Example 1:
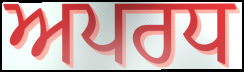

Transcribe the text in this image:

ਅਪਰਧ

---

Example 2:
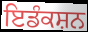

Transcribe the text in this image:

ਇਡੰਕਸ਼ਨ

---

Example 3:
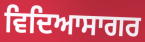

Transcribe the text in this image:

ਵਿਦਿਆਸਾਗਰ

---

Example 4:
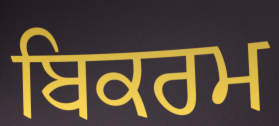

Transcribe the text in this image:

ਬਿਕਰਮ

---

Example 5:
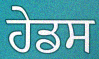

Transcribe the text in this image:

ਹੇਡਸ